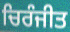
ਚਿਰੰਜੀਤ